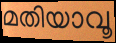
മതിയാവൂ